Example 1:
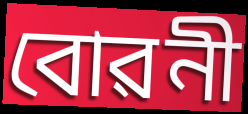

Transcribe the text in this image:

বোৱনী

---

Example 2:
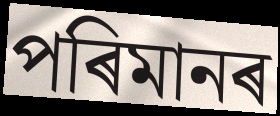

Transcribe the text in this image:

পৰিমানৰ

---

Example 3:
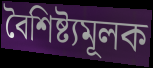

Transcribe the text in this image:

বৈশিষ্ট্যমূলক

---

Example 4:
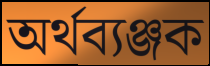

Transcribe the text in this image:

অৰ্থব্যঞ্জক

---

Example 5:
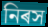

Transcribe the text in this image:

নিৰস